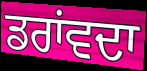
ਡਰਾਂਵਦਾ